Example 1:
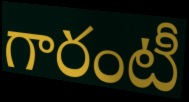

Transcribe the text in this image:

గారంటీ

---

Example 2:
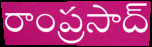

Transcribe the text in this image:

రాంప్రసాద్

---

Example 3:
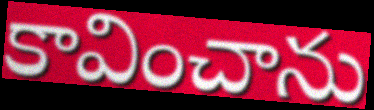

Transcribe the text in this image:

కావించాను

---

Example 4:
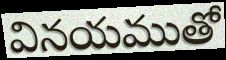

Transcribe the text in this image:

వినయముతో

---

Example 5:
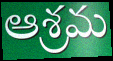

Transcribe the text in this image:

ఆశ్రమ